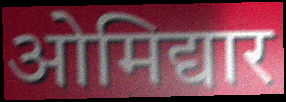
ओमिद्यार